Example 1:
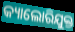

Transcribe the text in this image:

କ୍ୟାଲୋରିଯୁକ୍ତ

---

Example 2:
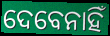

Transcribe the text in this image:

ଦେବେନାହିଁ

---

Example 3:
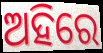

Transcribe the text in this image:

ଅହିରେ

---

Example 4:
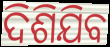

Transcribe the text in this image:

ଦିଶିଯିବ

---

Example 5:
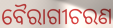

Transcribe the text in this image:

ବୈରାଗୀଚରଣ